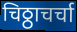
चिठ्ठाचर्चा